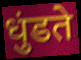
धुंडते